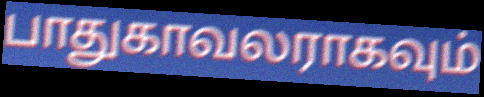
பாதுகாவலராகவும்